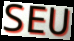
SEU